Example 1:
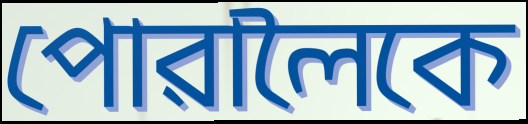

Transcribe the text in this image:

পোৱালৈকে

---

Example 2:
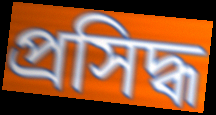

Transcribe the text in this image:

প্ৰসিদ্ধ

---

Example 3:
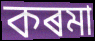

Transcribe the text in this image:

কৰমা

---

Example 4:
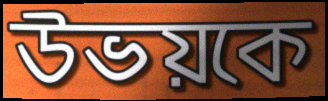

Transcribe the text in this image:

উভয়কে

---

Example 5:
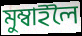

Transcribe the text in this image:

মুম্বাইলৈ